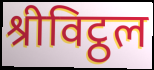
श्रीविट्ठल